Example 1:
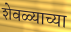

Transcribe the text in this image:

शेवळ्याच्या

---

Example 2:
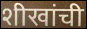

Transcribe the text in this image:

शीखांची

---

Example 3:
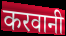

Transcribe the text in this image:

करवानी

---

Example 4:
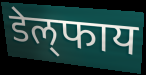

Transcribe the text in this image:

डेल्फाय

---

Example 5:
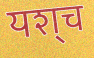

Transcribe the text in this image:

यश्च